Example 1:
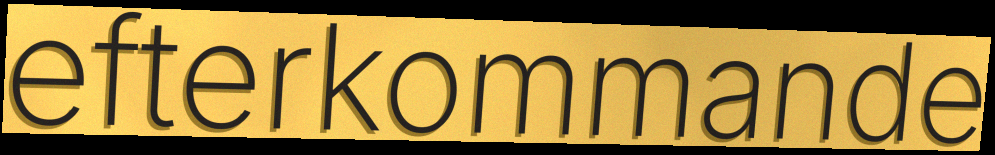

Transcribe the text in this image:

efterkommande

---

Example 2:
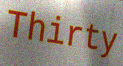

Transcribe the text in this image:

Thirty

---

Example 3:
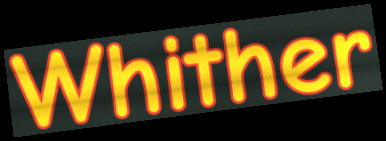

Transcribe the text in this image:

Whither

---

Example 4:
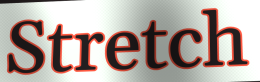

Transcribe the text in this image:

Stretch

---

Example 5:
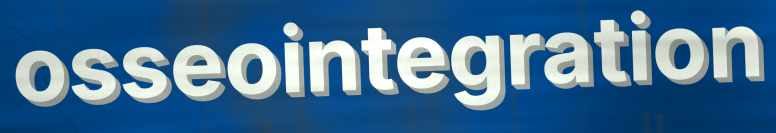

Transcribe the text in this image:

osseointegration